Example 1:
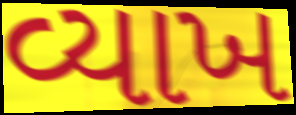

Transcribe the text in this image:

વ્યાખ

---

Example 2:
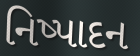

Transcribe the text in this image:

નિષ્પાદન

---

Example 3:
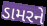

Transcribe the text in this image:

ડામરને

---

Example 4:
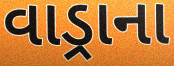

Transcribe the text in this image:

વાડ્રાના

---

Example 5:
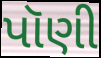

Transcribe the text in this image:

પૉણી